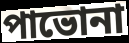
পাভোনা